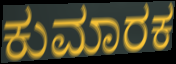
ಕುಮಾರಕ